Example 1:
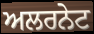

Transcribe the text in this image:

ਅਲਰਨੇਟ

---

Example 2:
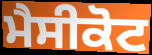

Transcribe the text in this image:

ਮੈਸੀਕੋਟ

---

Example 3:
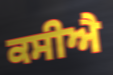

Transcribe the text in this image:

ਕਸੀਐ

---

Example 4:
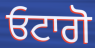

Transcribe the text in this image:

ਓਟਾਗੋ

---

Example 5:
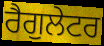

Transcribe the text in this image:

ਰੈਗੁਲੇਟਰ